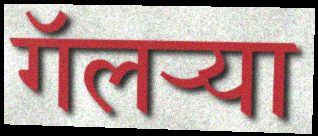
गॅलऱ्या